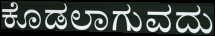
ಕೊಡಲಾಗುವದು